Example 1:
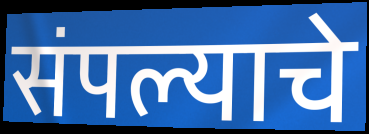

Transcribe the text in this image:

संपल्याचे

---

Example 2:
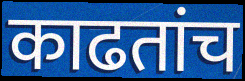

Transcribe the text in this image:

काढतांच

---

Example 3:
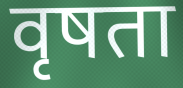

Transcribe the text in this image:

वृषता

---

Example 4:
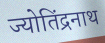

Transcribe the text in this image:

ज्योतिंद्रनाथ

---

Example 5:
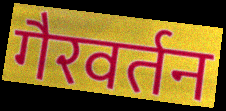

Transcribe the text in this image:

गैरवर्तन